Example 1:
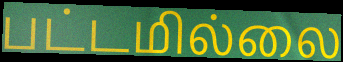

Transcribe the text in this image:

பட்டமில்லை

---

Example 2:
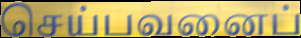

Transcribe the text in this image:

செய்பவனைப்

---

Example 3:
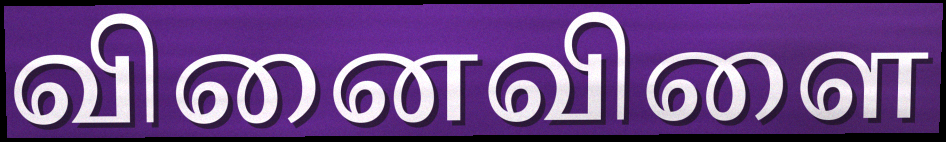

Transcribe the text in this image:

வினைவிளை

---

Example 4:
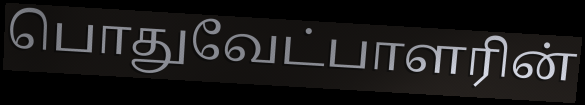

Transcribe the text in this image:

பொதுவேட்பாளரின்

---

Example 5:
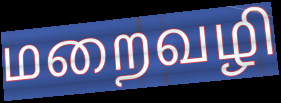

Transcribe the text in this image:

மறைவழி